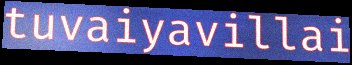
tuvaiyavillai